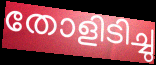
തോളിടിച്ചു